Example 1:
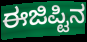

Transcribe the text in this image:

ಈಜಿಪ್ಟಿನ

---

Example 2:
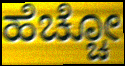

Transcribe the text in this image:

ಹೆಚ್ಚೋ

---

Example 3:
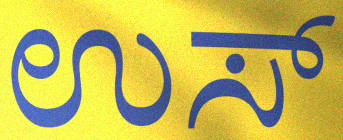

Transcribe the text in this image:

ಉಸ್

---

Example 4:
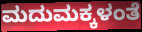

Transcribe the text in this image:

ಮದುಮಕ್ಕಳಂತೆ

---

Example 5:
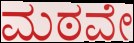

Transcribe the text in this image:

ಮಠವೇ